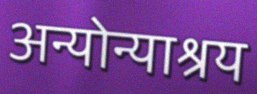
अन्योन्याश्रय